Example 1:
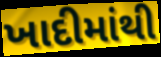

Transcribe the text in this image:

ખાદીમાંથી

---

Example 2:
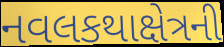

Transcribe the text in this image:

નવલકથાક્ષેત્રની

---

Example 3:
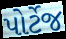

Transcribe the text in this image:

પોર્ટેજ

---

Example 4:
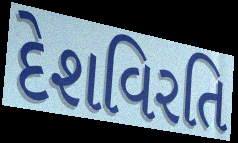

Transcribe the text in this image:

દેશવિરતિ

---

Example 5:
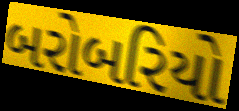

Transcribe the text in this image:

બરોબરિયો